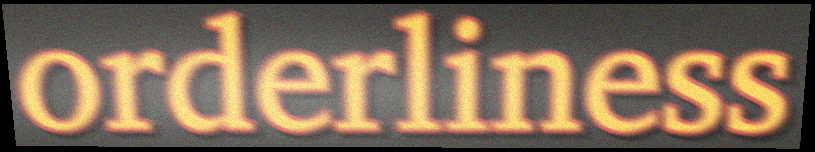
orderliness